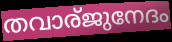
തവാര്ജുനേദം